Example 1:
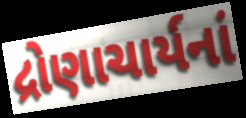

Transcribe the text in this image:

દ્રોણાચાર્યનાં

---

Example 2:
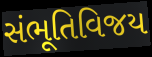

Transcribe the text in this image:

સંભૂતિવિજય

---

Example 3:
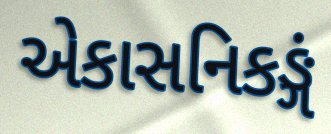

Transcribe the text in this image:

એકાસનિકઙ્ગં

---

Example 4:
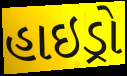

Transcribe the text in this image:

હાઇડ્રો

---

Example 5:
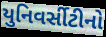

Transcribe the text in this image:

યુનિવર્સીટીનો